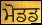
ਮੋਡਡ